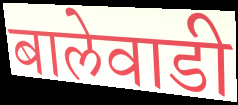
बालेवाडी